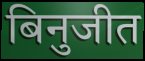
बिनुजीत